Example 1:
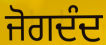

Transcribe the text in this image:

ਜੋਗਦੰਦ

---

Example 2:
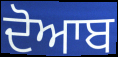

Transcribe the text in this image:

ਦੋਆਬ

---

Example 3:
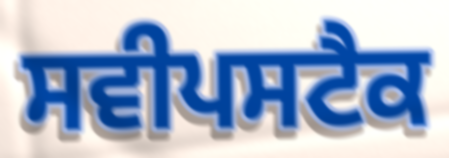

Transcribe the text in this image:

ਸਵੀਪਸਟੈਕ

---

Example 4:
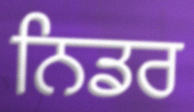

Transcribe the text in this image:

ਨਿਡਰ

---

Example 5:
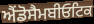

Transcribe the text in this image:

ਐਂਡੋਸੈਮਬੀਓਟਿਕ